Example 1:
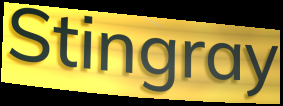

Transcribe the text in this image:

Stingray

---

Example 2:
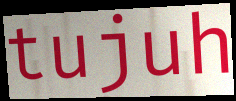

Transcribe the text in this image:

tujuh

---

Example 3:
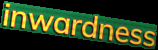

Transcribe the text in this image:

inwardness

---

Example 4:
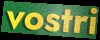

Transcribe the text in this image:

vostri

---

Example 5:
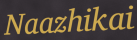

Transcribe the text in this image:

Naazhikai